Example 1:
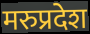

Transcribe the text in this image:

मरुप्रदेश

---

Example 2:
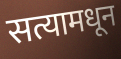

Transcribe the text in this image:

सत्यामधून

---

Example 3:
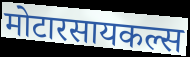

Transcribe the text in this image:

मोटारसायकल्स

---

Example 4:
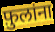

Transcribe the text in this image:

फ़ुलांना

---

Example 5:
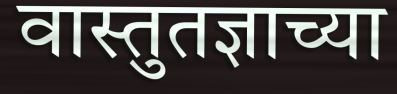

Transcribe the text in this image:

वास्तुतज्ञाच्या